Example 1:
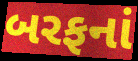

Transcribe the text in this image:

બરફનાં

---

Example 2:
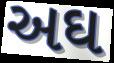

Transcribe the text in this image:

અઘ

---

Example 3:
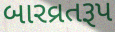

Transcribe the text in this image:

બારવ્રતરૂપ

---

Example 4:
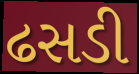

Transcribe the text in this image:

ઢસડી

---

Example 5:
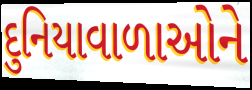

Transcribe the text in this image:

દુનિયાવાળાઓને